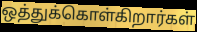
ஒத்துக்கொள்கிறார்கள்